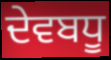
ਦੇਵਬਧੂ